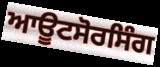
ਆਊਟਸੋਰਸਿੰਗ